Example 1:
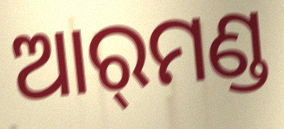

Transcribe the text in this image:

ଆର୍‌ମଣ୍ଡ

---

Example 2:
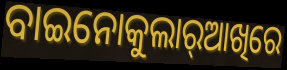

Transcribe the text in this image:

ବାଇନୋକୁଲାର୍‌ଆଖିରେ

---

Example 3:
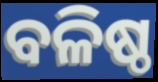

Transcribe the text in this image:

ବଳିଷ୍ଠ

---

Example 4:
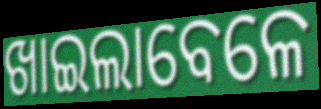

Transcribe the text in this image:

ଖାଇଲାବେଳେ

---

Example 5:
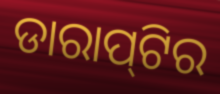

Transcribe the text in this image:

ଡାରାପ୍‌ଟିର